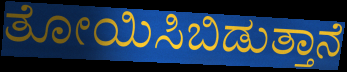
ತೋಯಿಸಿಬಿಡುತ್ತಾನೆ